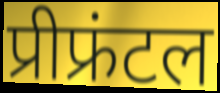
प्रीफ्रंटल